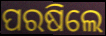
ପରଷିଲେ